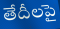
తేదీలపై